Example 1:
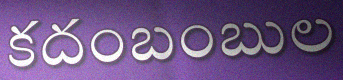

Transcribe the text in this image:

కదంబంబుల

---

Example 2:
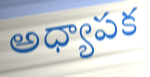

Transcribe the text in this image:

అధ్యాపక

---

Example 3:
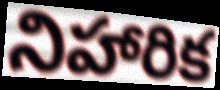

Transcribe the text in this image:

నిహారిక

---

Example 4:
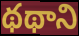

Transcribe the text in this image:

థథాని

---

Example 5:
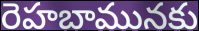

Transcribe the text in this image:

రెహబామునకు